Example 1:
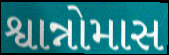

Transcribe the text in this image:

શ્વાન્નોમાસ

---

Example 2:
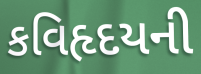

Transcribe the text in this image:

કવિહૃદયની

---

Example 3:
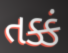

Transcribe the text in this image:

તક્કં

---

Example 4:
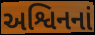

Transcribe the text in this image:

અશ્વિનનાં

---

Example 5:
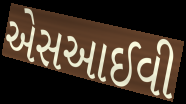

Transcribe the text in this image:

એસઆઈવી